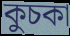
কুচকা